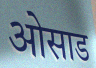
ओसाड